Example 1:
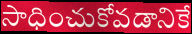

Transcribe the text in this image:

సాధించుకోవడానికే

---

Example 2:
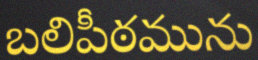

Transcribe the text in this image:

బలిపీఠమును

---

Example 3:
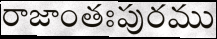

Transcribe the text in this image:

రాజాంతఃపురము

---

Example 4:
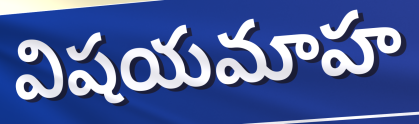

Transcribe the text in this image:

విషయమాహ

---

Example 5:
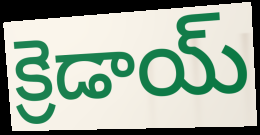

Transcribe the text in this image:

క్రెడాయ్